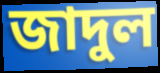
জাদুল